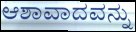
ಆಶಾವಾದವನ್ನು